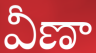
వీణా